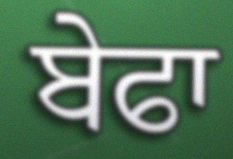
ਬੇਫਾ